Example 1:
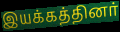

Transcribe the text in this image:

இயக்கத்தினர்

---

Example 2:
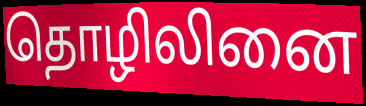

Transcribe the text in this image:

தொழிலினை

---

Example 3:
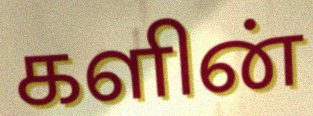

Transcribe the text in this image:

களின்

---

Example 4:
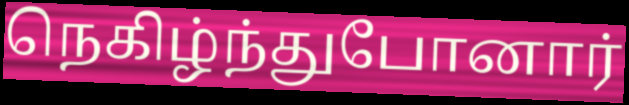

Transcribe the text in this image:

நெகிழ்ந்துபோனார்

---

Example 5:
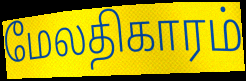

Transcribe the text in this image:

மேலதிகாரம்